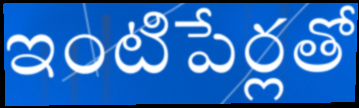
ఇంటిపేర్లతో